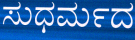
ಸುಧರ್ಮದ